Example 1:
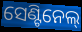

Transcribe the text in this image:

ସେଣ୍ଟିନେଲ୍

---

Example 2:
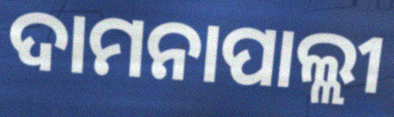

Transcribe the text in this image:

ଦାମନାପାଲ୍ଲୀ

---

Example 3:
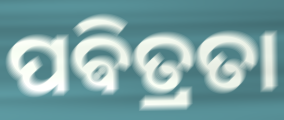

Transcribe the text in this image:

ପଵିତ୍ରତା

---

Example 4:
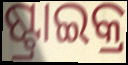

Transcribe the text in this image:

ଷ୍ଟ୍ରାଇକ୍ର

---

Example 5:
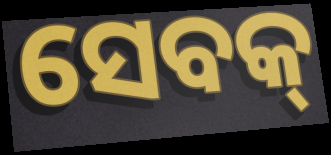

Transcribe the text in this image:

ସେବକ୍